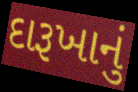
દારૂખાનું